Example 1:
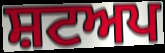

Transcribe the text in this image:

ਸ਼ਟਅਪ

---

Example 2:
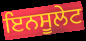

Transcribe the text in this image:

ਇਨਸੂਲੇਟ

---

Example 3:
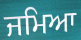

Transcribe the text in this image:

ਜਮਿਆ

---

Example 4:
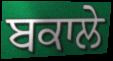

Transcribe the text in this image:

ਬਕਾਲੇ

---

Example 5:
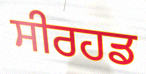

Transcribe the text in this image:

ਸੀਰਹਡ